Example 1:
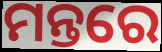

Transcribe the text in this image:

ମନ୍ତରେ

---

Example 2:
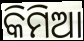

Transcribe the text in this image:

କିମିଆ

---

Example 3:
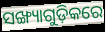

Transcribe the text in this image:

ସଙ୍ଖ୍ୟାଗୁଡ଼ିକରେ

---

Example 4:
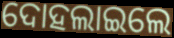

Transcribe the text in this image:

ଦୋହଲାଇଲେ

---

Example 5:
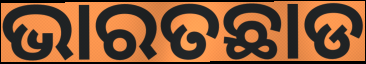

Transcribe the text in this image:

ଭାରତଛାଡ